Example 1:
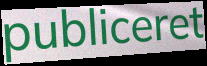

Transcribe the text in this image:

publiceret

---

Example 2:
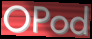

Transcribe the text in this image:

OPod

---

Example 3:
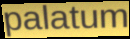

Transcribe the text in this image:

palatum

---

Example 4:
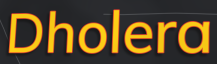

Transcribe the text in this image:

Dholera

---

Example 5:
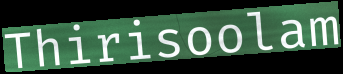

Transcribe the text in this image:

Thirisoolam